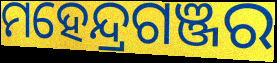
ମହେନ୍ଦ୍ରଗଞ୍ଜର